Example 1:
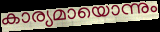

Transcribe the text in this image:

കാര്യമായൊന്നും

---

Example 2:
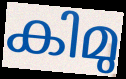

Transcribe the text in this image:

കിമു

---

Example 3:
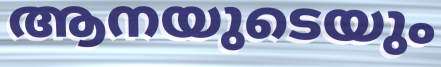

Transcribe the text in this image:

ആനയുടെയും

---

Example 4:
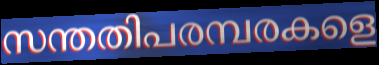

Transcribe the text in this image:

സന്തതിപരമ്പരകളെ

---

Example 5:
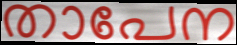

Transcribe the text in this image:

താപേന